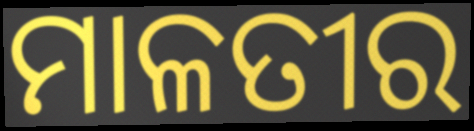
ମାଳତୀର